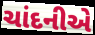
ચાંદનીએ